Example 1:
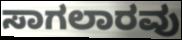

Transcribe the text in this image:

ಸಾಗಲಾರವು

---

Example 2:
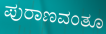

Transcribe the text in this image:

ಪುರಾಣವಂತೂ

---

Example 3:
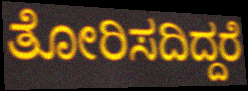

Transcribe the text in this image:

ತೋರಿಸದಿದ್ದರೆ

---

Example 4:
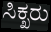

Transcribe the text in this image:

ಸಿಕ್ಖರು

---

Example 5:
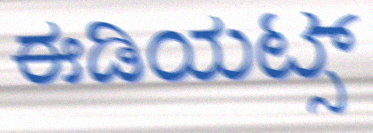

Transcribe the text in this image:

ಈಡಿಯಟ್ಸ್